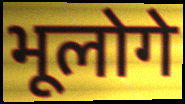
भूलोगे